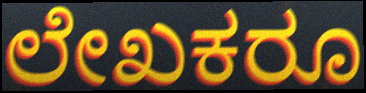
ಲೇಖಕರೂ